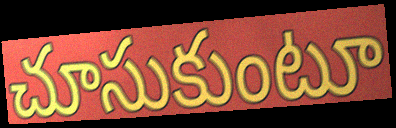
చూసుకుంటూ